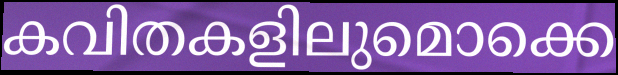
കവിതകളിലുമൊക്കെ